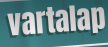
vartalap